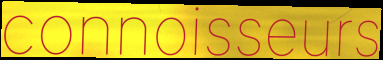
connoisseurs